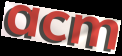
acm